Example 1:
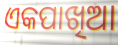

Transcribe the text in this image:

ଏକପାଖିଆ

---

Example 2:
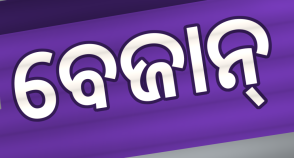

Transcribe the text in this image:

ବେଜାନ୍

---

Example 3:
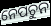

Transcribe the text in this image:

ନେପଚୁନ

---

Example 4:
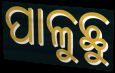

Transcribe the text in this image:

ପାଳୁଛୁ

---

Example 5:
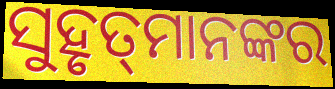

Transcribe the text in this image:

ସୁହୃତ୍‌ମାନଙ୍କର